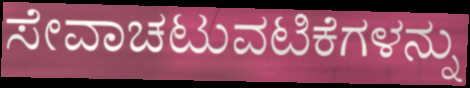
ಸೇವಾಚಟುವಟಿಕೆಗಳನ್ನು